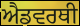
ਐਡਵਰਥੀ